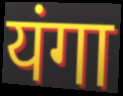
यंगा